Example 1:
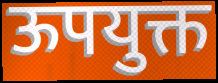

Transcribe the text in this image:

ऊपयुक्त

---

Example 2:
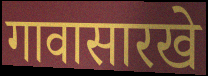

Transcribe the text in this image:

गावासारखे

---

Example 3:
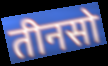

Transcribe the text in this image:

तीनसो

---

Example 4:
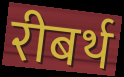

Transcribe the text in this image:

रीबर्थ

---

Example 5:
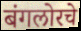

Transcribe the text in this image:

बंगलोरचे